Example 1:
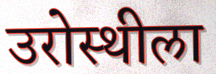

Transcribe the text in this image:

उरोस्थीला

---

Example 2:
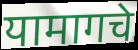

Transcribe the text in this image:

यामागचे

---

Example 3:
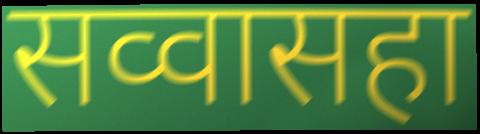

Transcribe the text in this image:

सव्वासहा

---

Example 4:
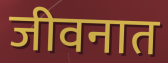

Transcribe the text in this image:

जीवनात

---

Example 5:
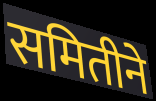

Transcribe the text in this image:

समितीने